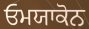
ਓਮਯਾਕੋਨ